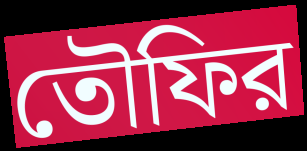
তৌফির